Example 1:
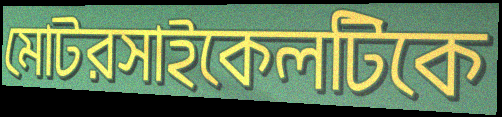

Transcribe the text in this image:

মোটরসাইকেলটিকে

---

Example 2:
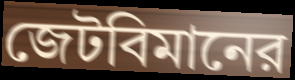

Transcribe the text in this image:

জেটবিমানের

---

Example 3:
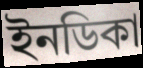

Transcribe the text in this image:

ইনডিকা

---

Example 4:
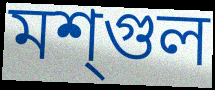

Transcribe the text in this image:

মশ্গুল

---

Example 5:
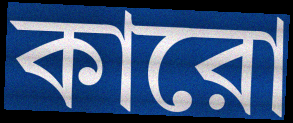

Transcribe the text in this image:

কারো